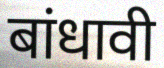
बांधावी